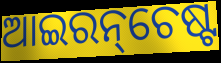
ଆଇରନ୍‌ଚେଷ୍ଟ